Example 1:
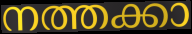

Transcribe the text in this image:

നത്തക്കാ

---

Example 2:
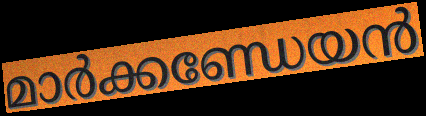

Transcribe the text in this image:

മാർക്കണ്ഡേയൻ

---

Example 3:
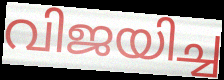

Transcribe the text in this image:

വിജയിച്ച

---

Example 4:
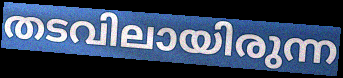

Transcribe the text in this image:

തടവിലായിരുന്ന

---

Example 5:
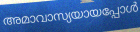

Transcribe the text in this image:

അമാവാസ്യയായപ്പോൾ